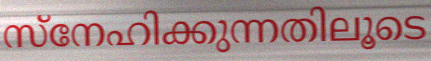
സ്നേഹിക്കുന്നതിലൂടെ